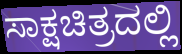
ಸಾಕ್ಷಚಿತ್ರದಲ್ಲಿ